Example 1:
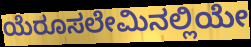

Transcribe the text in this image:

ಯೆರೂಸಲೇಮಿನಲ್ಲಿಯೇ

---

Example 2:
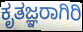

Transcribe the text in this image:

ಕೃತಜ್ಞರಾಗಿರಿ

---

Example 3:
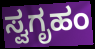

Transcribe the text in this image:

ಸ್ವಗೃಹಂ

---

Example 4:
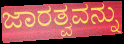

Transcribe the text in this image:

ಜಾರತ್ವವನ್ನು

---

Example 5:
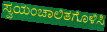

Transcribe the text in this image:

ಸ್ವಯಂಚಾಲಿತಗೊಳಿಸಿ